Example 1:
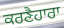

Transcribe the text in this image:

ਕਰਣੈਹਾਰਾ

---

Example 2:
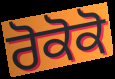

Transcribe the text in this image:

ਰੋਕੋਕੋ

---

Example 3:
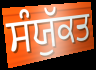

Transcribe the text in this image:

ਸੰਯੁੱਕਤ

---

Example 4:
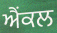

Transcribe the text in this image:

ਐਂਕਲ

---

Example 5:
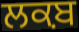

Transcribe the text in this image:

ਲਕ਼ਬ